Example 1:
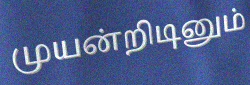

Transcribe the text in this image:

முயன்றிடினும்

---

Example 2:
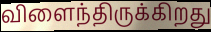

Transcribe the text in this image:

விளைந்திருக்கிறது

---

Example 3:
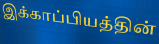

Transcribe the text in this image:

இக்காப்பியத்தின்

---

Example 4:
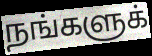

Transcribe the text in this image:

நங்களுக்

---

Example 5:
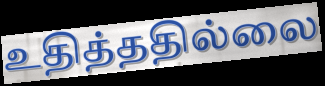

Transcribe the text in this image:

உதித்ததில்லை